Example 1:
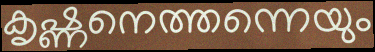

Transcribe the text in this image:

കൃഷ്ണനെത്തന്നെയും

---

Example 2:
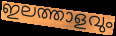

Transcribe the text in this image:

ഇലത്താളവും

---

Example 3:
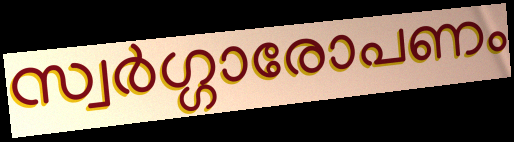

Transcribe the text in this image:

സ്വർഗ്ഗാരോപണം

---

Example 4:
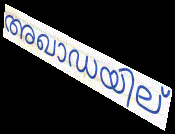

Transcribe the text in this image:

അഖാഡയില്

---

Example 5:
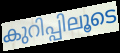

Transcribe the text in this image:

കുറിപ്പിലൂടെ